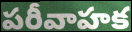
పరీవాహక